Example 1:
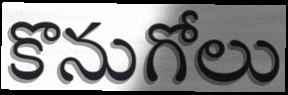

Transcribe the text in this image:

కొనుగోలు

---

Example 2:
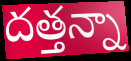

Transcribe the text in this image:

దత్తన్నా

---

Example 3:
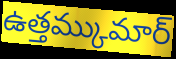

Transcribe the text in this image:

ఉత్తమ్కుమార్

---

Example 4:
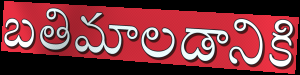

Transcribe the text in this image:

బతిమాలడానికి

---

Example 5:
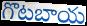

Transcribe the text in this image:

గొటబాయ